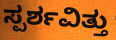
ಸ್ಪರ್ಶವಿತ್ತು